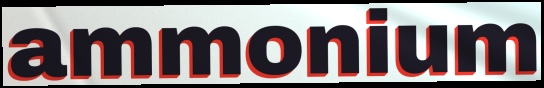
ammonium